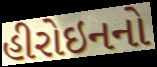
હીરોઇનનો